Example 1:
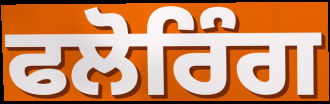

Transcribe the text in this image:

ਫਲੋਰਿੰਗ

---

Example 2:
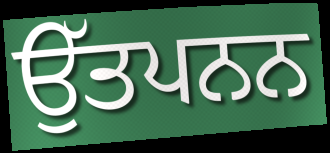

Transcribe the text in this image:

ਉੱਤਪਨਨ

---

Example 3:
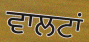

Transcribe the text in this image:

ਵਾਲਟਾਂ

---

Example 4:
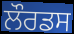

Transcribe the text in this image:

ਲੌਰਡਸ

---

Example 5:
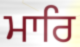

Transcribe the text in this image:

ਮਾਰਿ